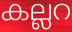
കല്ലറ